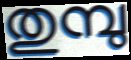
തുമ്പു